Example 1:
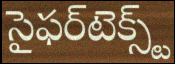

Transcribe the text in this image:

సైఫర్‌టెక్స్ట్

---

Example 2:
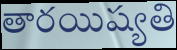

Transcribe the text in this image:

తారయిష్యతి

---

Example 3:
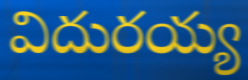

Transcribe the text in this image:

విదురయ్య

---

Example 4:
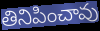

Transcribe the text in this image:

తినిపించావు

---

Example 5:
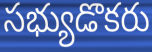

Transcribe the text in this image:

సభ్యుడొకరు